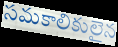
సమకాలికులైన